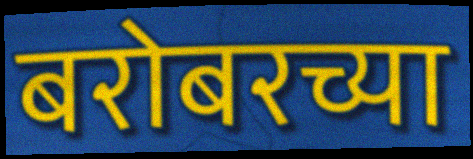
बरोबरच्या